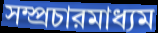
সম্প্রচারমাধ্যম